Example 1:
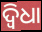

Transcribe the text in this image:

ଦ୍ୱିଧା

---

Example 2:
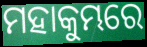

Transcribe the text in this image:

ମହାକୁମ୍ଭରେ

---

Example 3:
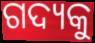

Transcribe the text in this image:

ଗଦ୍ୟକୁ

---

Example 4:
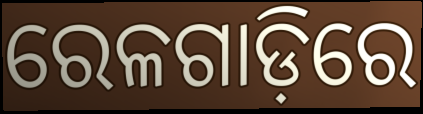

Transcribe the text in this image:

ରେଳଗାଡ଼ିରେ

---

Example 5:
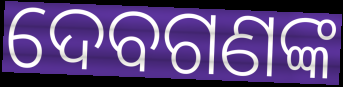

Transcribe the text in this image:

ଦେବଗଣଙ୍କ